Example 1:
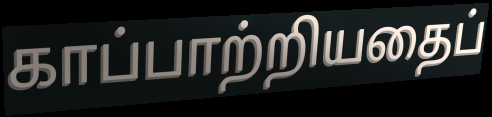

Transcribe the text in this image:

காப்பாற்றியதைப்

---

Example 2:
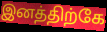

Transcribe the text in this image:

இனத்திற்கே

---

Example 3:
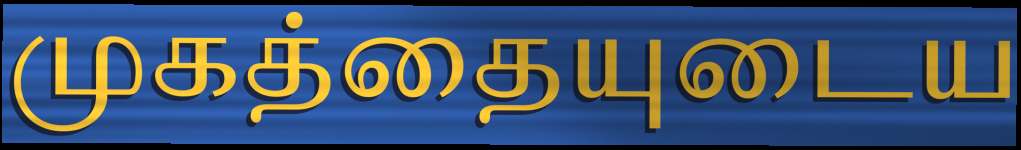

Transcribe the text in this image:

முகத்தையுடைய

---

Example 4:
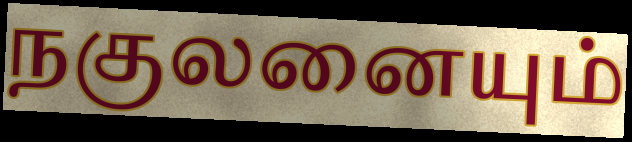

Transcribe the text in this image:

நகுலனையும்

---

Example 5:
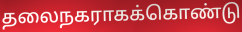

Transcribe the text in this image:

தலைநகராகக்கொண்டு